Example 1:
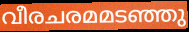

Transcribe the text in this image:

വീരചരമമടഞ്ഞു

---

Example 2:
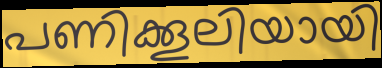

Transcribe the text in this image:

പണിക്കൂലിയായി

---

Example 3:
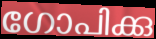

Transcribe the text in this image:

ഗോപിക്കു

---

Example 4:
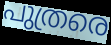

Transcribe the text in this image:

പുത്രരെ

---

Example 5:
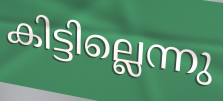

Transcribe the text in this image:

കിട്ടില്ലെന്നു